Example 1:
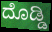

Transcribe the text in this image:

ದೊಡ್ಡಿ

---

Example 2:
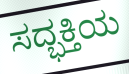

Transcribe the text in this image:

ಸದ್ಭಕ್ತಿಯ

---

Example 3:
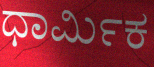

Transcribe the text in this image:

ಧಾರ್ಮಿಕ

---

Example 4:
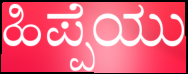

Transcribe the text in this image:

ಹಿಪ್ಪೆಯು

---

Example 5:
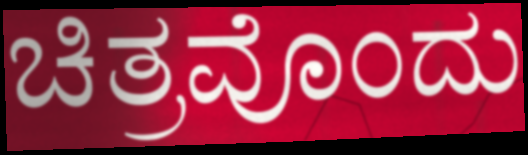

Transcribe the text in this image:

ಚಿತ್ರವೊಂದು